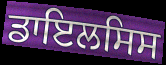
ਡਾਇਲਸਿਸ